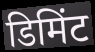
डिमिंट